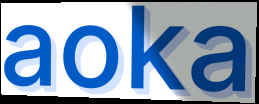
aoka